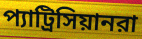
প্যাট্রিসিয়ানরা